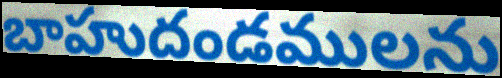
బాహుదండములను